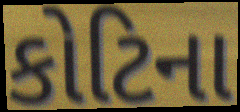
કોટિના